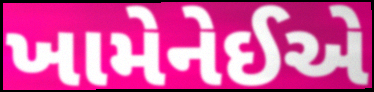
ખામેનેઈએ